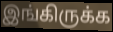
இங்கிருக்க